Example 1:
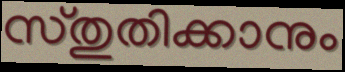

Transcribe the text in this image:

സ്തുതിക്കാനും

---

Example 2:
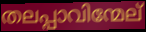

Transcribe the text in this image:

തലപ്പാവിന്മേല്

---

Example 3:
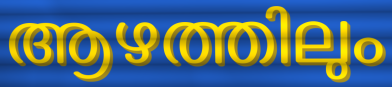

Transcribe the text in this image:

ആഴത്തിലും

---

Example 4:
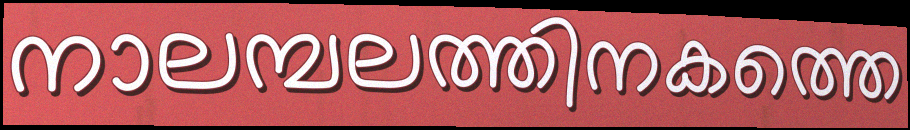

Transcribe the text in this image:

നാലമ്പലത്തിനകത്തെ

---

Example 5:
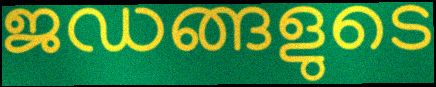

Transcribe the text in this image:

ജഡങ്ങളുടെ